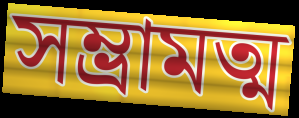
সম্ভ্রামত্ম